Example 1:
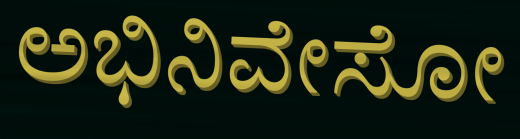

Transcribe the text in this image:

ಅಭಿನಿವೇಸೋ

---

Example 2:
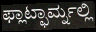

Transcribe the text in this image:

ಫ್ಲಾಟ್ಫಾರ್ಮ್ನಲ್ಲಿ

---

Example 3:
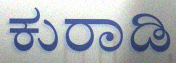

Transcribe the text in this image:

ಕುರಾಡಿ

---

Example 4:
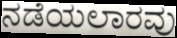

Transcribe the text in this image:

ನಡೆಯಲಾರವು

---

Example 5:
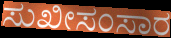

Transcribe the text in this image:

ಸುಖೀಸಂಸಾರ